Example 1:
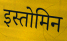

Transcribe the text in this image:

इस्तोमिन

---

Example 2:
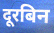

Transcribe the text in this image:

दूरबिन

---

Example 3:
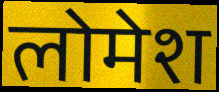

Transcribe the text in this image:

लोमेश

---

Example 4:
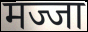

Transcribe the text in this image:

मज्जा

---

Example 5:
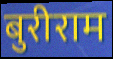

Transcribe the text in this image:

बुरीराम